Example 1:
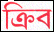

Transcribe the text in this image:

ক্রিব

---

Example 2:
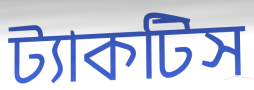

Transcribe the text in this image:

ট্যাকটিস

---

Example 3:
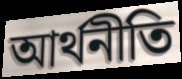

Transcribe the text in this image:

আর্থনীতি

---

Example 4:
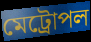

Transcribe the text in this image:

মেট্রোপল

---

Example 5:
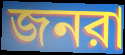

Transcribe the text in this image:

জনরা